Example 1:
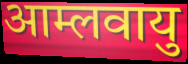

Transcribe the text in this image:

आम्लवायु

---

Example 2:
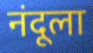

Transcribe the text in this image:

नंदूला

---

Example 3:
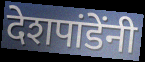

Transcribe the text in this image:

देशपांडेंनी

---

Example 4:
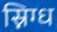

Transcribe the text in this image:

स्निग्ध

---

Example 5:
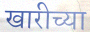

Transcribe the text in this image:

खारीच्या